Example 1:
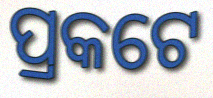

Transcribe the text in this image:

ପ୍ରକଟେ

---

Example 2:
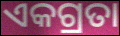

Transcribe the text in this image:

ଏକଗ୍ରତା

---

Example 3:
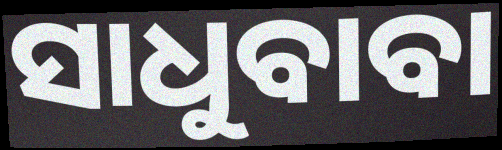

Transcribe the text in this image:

ସାଧୁବାବା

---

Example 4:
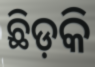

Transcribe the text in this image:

ଛିଡ଼କି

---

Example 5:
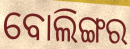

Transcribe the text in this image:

ବୋଲିଙ୍ଗର